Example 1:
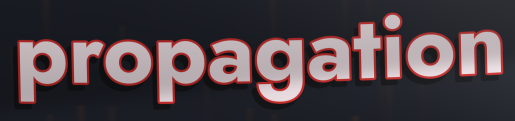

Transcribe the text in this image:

propagation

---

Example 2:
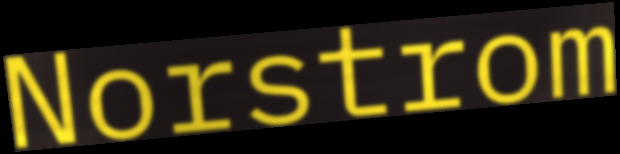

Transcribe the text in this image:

Norstrom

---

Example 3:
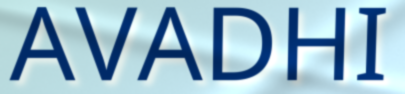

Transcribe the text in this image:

AVADHI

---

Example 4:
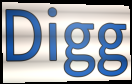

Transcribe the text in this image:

Digg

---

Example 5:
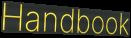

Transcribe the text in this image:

Handbook